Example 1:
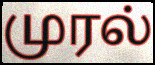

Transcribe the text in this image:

முரல்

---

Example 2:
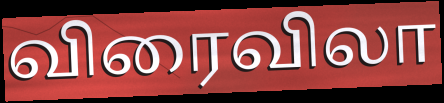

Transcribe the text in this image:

விரைவிலா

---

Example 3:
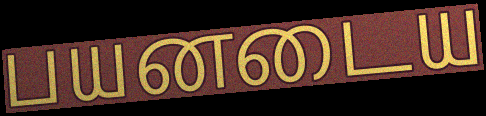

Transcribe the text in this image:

பயனடைய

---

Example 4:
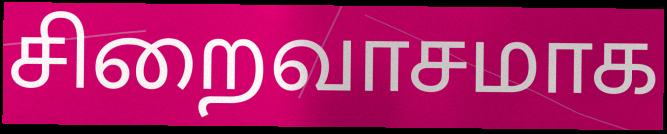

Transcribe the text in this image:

சிறைவாசமாக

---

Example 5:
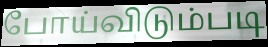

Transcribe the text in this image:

போய்விடும்படி